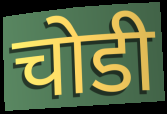
चोडी